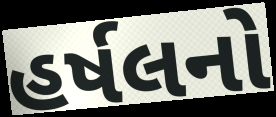
હર્ષલનો